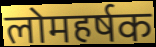
लोमहर्षक